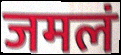
जमलं